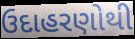
ઉદાહરણોથી